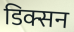
डिक्सन